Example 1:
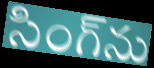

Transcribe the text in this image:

సింగ్‌ను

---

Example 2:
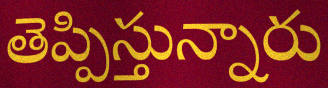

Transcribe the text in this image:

తెప్పిస్తున్నారు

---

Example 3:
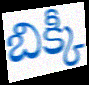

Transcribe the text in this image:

బిక్కీ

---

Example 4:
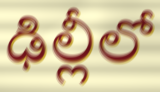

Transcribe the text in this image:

ఢిల్లీలో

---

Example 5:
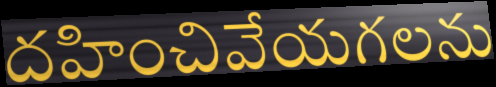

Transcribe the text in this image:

దహించివేయగలను